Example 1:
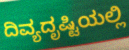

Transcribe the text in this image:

ದಿವ್ಯದೃಷ್ಟಿಯಲ್ಲಿ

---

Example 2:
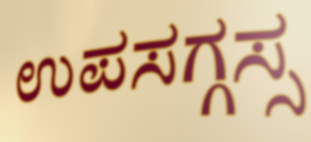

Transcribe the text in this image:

ಉಪಸಗ್ಗಸ್ಸ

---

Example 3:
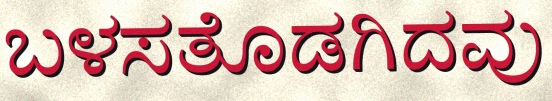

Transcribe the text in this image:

ಬಳಸತೊಡಗಿದವು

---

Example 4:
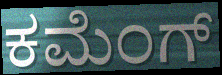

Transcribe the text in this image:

ಕಮೆಂಗ್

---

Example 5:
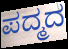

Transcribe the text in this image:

ಪದ್ಮದ